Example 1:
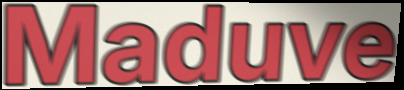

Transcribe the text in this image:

Maduve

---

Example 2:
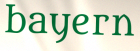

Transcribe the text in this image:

bayern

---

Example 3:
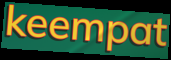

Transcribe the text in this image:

keempat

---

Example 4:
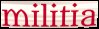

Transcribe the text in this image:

militia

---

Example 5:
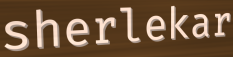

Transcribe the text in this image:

sherlekar